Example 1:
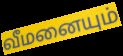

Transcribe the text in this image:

வீமனையும்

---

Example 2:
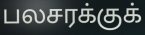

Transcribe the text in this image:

பலசரக்குக்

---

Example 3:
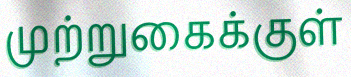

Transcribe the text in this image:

முற்றுகைக்குள்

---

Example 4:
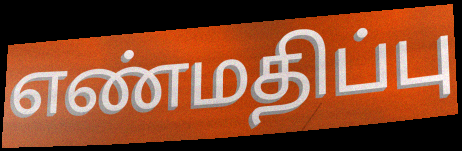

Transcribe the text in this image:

எண்மதிப்பு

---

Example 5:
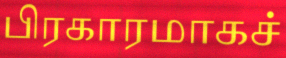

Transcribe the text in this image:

பிரகாரமாகச்